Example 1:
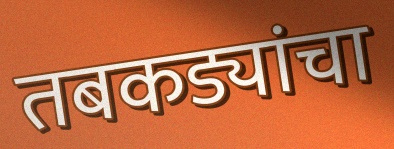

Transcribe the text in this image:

तबकड्यांचा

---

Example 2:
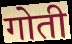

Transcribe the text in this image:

गोती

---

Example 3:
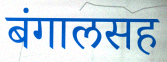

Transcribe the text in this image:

बंगालसह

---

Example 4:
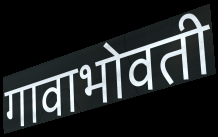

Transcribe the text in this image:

गावाभोवती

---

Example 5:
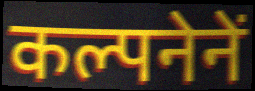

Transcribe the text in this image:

कल्पनेनें